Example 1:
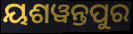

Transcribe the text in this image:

ୟଶୱନ୍ତପୁର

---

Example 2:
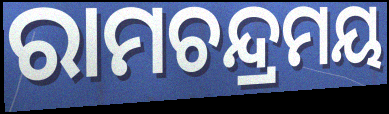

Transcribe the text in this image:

ରାମଚନ୍ଦ୍ରମୟ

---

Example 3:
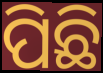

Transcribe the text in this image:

ପିଛି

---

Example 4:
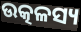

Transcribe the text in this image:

ଉତ୍କଳସ୍ୟ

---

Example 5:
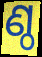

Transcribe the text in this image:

ଣ୍ଠ